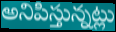
అనిపిస్తున్నట్లు